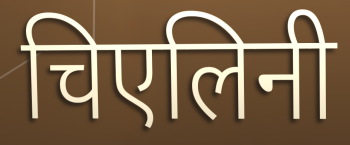
चिएलिनी